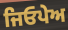
ਜਿਓਪੇਅ